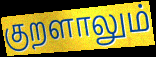
குறளாலும்